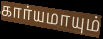
கார்யமாயும்